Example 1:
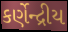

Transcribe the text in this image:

કર્ણેન્દ્રીય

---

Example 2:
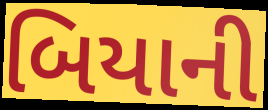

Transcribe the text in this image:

બિયાની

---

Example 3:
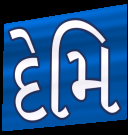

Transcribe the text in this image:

દેમિ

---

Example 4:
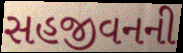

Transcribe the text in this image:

સહજીવનની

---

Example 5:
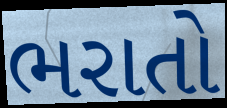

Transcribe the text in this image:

ભરાતો